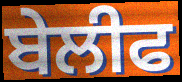
ਬੇਲੀਫ